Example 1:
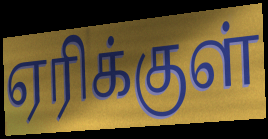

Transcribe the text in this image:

ஏரிக்குள்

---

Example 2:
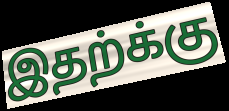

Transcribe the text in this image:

இதற்க்கு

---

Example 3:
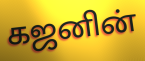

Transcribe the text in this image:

கஜனின்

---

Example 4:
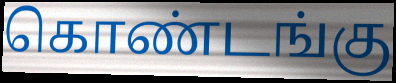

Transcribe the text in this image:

கொண்டங்கு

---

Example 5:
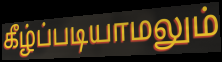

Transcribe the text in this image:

கீழ்ப்படியாமலும்